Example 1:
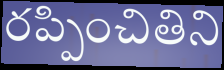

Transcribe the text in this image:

రప్పించితిని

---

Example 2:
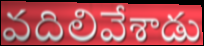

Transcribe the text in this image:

వదిలివేశాడు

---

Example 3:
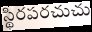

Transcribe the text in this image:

స్థిరపరచుచు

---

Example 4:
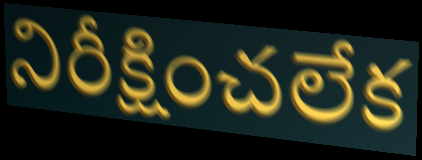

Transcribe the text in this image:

నిరీక్షించలేక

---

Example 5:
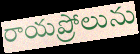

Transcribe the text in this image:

రాయప్రోలును